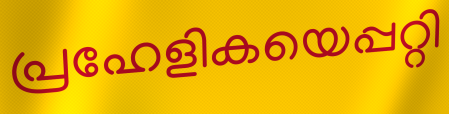
പ്രഹേളികയെപ്പറ്റി